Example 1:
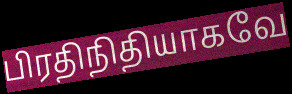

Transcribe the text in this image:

பிரதிநிதியாகவே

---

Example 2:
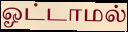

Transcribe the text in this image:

ஓட்டாமல்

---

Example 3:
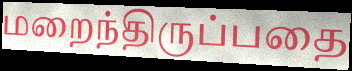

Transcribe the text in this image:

மறைந்திருப்பதை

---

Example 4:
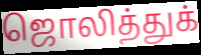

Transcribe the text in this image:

ஜொலித்துக்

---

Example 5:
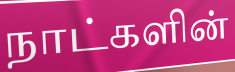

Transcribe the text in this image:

நாட்களின்